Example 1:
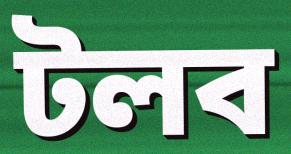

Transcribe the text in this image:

টলব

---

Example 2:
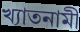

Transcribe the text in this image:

খ্যাতনামী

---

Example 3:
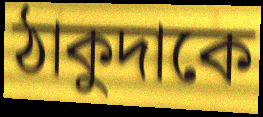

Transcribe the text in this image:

ঠাকুদাকে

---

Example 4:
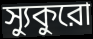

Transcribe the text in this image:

স্যুকুরো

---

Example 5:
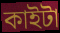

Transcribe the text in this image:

কাইটা